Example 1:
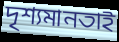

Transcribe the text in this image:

দৃশ্যমানতাই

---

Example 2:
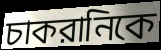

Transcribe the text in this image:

চাকরানিকে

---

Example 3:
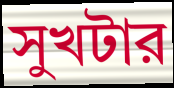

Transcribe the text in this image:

সুখটার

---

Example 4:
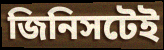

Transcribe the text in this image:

জিনিসটেই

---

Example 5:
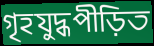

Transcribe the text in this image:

গৃহযুদ্ধপীড়িত